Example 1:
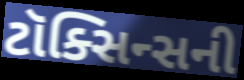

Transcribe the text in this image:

ટૉક્સિન્સની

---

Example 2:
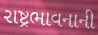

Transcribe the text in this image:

રાષ્ટ્રભાવનાની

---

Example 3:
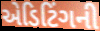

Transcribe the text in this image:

એડિટિંગની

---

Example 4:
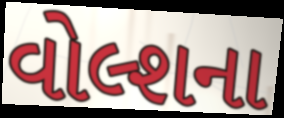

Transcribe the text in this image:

વોલ્શના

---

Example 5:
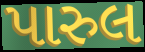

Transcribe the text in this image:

પારુલ